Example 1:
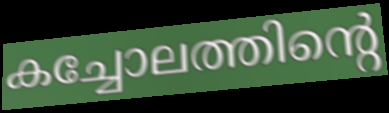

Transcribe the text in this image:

കച്ചോലത്തിന്റെ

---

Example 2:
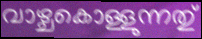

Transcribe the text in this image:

വാഴ്ചകൊള്ളുന്നതു്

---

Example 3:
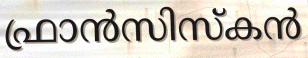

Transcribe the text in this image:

ഫ്രാൻസിസ്കൻ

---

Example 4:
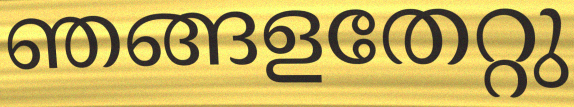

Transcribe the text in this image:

ഞങ്ങളതേറ്റു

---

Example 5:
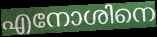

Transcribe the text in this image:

എനോശിനെ